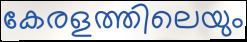
കേരളത്തിലെയും